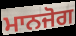
ਮਾਨਜੋਗ